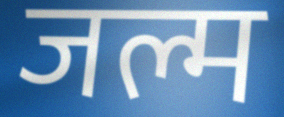
जल्म